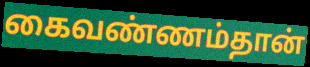
கைவண்ணம்தான்